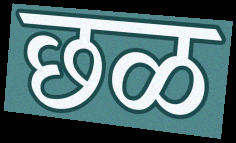
छळ